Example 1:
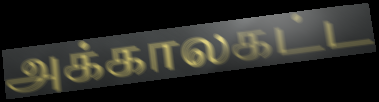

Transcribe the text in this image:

அக்காலகட்ட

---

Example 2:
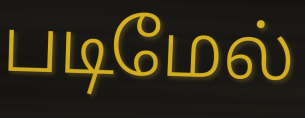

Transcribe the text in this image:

படிமேல்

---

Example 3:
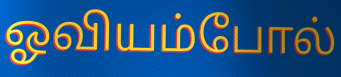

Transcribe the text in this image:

ஓவியம்போல்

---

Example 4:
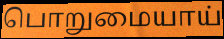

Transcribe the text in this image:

பொறுமையாய்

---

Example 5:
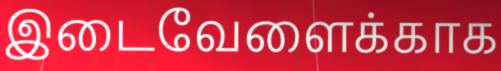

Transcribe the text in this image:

இடைவேளைக்காக